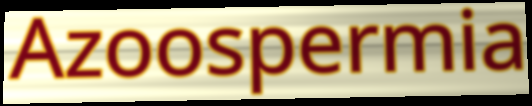
Azoospermia